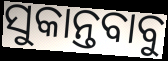
ସୁକାନ୍ତବାବୁ